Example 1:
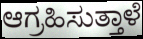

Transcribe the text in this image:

ಆಗ್ರಹಿಸುತ್ತಾಳೆ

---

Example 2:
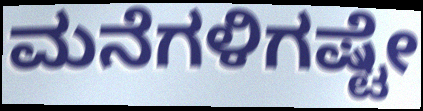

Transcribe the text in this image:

ಮನೆಗಳಿಗಷ್ಟೇ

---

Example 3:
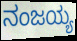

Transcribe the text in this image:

ನಂಜಯ್ಯ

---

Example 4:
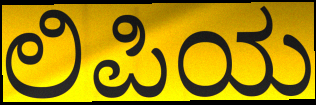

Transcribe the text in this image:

ಲಿಪಿಯ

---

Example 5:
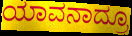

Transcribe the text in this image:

ಯಾವನಾದ್ರೂ